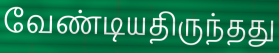
வேண்டியதிருந்தது